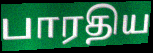
பாரதிய